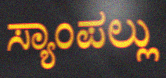
ಸ್ಯಾಂಪಲ್ಲು